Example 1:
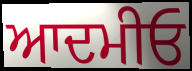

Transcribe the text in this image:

ਆਦਮੀਓ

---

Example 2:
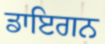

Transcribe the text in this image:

ਡਾਇਗਨ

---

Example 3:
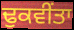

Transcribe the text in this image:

ਢੁਕਵੀਂਤਾ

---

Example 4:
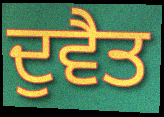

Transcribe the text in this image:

ਦੁਵੈਤ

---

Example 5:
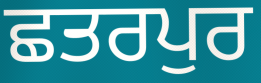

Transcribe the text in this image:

ਛਤਰਪੁਰ